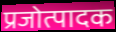
प्रजोत्पादक